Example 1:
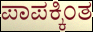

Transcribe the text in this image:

ಪಾಪಕ್ಕಿಂತ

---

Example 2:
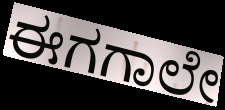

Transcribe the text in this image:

ಈಗಗಾಲೇ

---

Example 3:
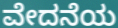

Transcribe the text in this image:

ವೇದನೆಯ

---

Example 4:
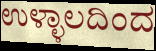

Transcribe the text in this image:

ಉಳ್ಳಾಲದಿಂದ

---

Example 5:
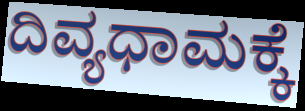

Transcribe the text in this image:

ದಿವ್ಯಧಾಮಕ್ಕೆ